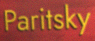
Paritsky